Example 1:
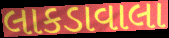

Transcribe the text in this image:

લાકડાવાલા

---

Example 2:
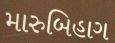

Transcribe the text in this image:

મારુબિહાગ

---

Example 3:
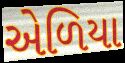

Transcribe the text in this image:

એળિયા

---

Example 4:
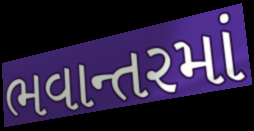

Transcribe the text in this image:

ભવાન્તરમાં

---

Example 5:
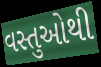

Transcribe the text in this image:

વસ્તુઓથી